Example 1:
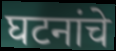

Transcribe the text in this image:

घटनांचे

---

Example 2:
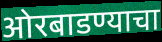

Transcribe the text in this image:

ओरबाडण्याचा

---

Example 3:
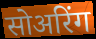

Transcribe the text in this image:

सोअरिंग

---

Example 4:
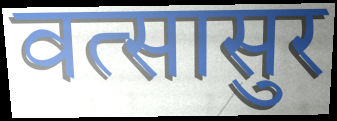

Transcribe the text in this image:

वत्सासुर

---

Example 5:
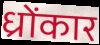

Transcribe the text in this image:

ध्रोंकार